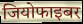
जियोफाइबर